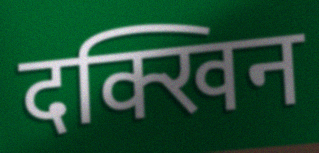
दक्खिन